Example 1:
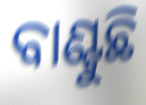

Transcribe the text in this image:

ବାଣ୍ଟୁଛି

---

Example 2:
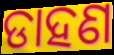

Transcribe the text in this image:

ଡାହଣ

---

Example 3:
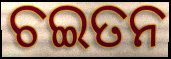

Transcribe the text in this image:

ଚଇତନ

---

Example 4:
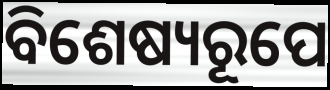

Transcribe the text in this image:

ବିଶେଷ୍ୟରୂପେ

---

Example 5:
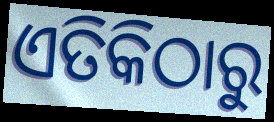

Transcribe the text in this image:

ଏତିକିଠାରୁ